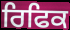
ਰਿਫਿਕ